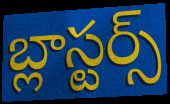
బ్లాస్టర్స్